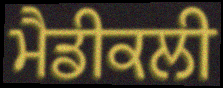
ਮੈਡੀਕਲੀ